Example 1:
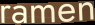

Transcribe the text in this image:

ramen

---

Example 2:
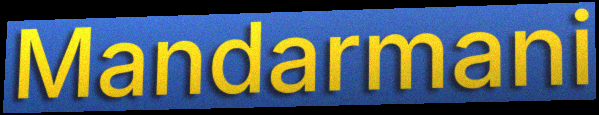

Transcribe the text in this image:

Mandarmani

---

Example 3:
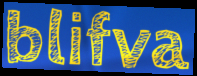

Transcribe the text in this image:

blifva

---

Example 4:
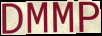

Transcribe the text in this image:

DMMP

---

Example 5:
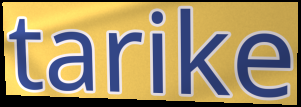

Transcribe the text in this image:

tarike